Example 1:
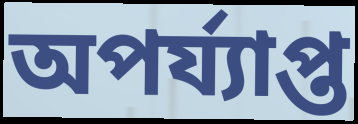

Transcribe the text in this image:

অপৰ্য্যাপ্ত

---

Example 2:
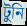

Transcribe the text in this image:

টুনি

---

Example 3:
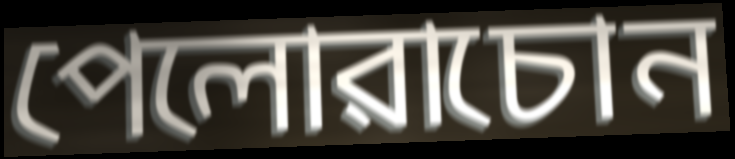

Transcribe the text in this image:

পেলোৱাচোন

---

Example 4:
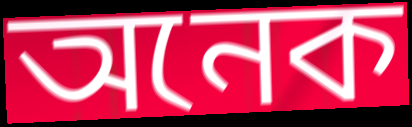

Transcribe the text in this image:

অনেক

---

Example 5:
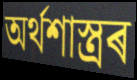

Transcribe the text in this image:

অৰ্থশাস্ত্ৰৰ